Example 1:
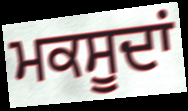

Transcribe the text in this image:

ਮਕਸੂਦਾਂ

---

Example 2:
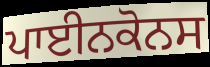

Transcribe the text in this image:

ਪਾਈਨਕੋਨਸ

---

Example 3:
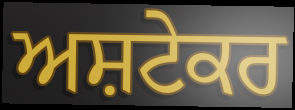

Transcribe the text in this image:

ਅਸ਼ਟੇਕਰ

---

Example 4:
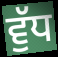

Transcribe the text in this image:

ਵੁੱਧ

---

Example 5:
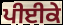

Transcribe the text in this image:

ਪੀਈਕੇ